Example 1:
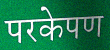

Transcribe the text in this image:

परकेपण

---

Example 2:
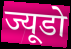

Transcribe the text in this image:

ज्यूडो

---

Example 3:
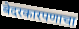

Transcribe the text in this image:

बेदरकारपणाचा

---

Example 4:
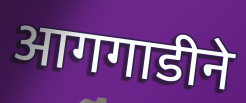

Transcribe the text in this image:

आगगाडीने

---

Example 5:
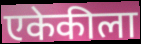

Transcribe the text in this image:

एकेकीला